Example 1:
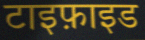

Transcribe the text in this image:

टाइफ़ाइड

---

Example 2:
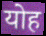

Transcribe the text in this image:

योह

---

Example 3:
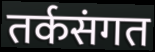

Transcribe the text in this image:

तर्कसंगत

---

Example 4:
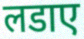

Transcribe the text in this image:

लडाए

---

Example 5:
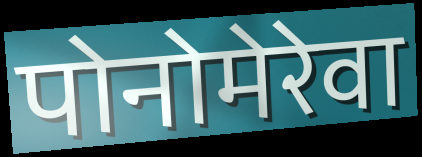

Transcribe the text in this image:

पोनोमेरेवा